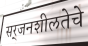
सर्जनशीलतेचे